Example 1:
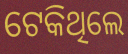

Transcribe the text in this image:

ଟେକିଥିଲେ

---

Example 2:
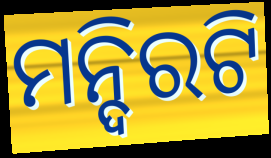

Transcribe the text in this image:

ମନ୍ଦିରଟି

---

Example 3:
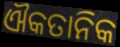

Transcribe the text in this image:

ଐକତାନିକ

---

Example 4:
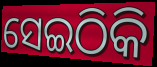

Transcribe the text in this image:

ସେଇଠିକି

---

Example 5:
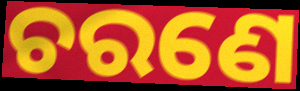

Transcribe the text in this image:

ଚରଣେ